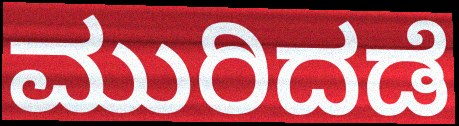
ಮುರಿದಡೆ